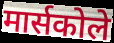
मार्सकोले